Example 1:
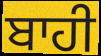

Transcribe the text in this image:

ਬਾਹੀ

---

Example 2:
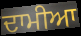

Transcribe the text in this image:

ਦਾਮੀਆ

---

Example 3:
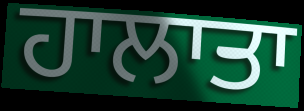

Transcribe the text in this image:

ਹਾਲਾਤਾ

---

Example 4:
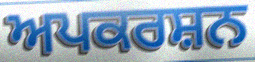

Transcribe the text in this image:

ਅਪਕਰਸ਼ਨ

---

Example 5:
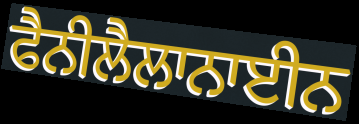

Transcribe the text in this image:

ਫੈਨੀਲੈਲਾਨਾਈਨ